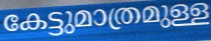
കേട്ടുമാത്രമുള്ള